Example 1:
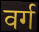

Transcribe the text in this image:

वर्ग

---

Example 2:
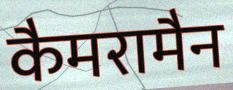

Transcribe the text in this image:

कैमरामैन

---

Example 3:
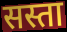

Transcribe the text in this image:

सस्ता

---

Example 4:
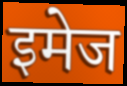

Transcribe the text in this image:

इमेज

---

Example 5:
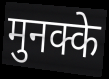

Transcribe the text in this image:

मुनक्के